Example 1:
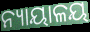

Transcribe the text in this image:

ନ୍ୟାୟାଳୟ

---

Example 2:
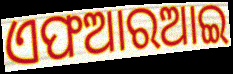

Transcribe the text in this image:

ଏଫଆରଆଇ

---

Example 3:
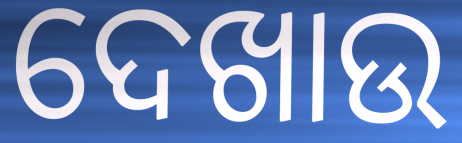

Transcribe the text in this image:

ଦେଖାଉ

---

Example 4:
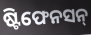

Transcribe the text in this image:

ଷ୍ଟିଫେନସନ୍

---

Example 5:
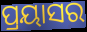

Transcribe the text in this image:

ପ୍ରୟାସର